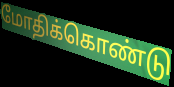
மோதிக்கொண்டு